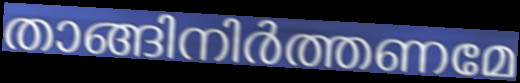
താങ്ങിനിർത്തണമേ